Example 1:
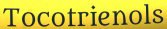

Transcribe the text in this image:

Tocotrienols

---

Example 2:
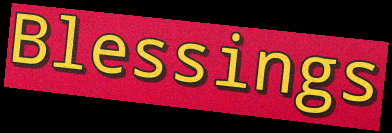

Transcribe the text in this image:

Blessings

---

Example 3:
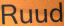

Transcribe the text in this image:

Ruud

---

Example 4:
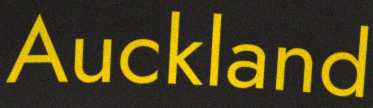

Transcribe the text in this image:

Auckland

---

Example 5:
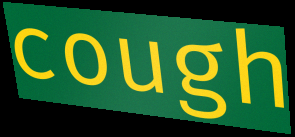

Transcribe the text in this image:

cough